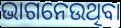
ଭାଗନେଉଥିବା